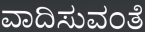
ವಾದಿಸುವಂತೆ